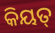
କିୟତ୍